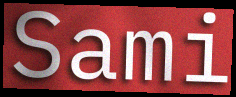
Sami